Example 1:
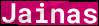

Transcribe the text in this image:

Jainas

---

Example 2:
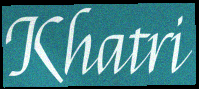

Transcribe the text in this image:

Khatri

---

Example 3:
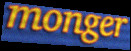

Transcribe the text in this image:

monger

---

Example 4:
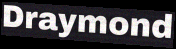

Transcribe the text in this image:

Draymond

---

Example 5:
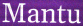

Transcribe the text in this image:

Mantu